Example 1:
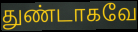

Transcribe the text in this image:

துண்டாகவே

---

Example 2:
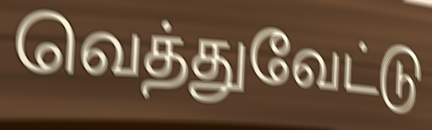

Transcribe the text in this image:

வெத்துவேட்டு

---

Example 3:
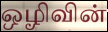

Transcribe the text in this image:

ஒழிவின்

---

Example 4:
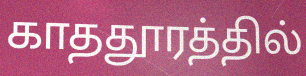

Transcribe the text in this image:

காததூரத்தில்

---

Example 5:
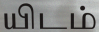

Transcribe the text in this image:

யிடம்